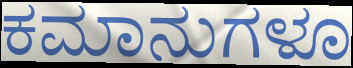
ಕಮಾನುಗಳೂ